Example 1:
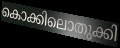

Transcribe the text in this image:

കൊക്കിലൊതുക്കി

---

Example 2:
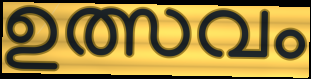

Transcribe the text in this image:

ഉത്സവം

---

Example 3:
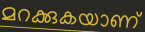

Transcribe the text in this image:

മറക്കുകയാണ്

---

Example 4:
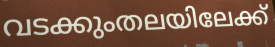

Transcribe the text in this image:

വടക്കുംതലയിലേക്ക്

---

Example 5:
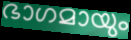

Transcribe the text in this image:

ഭാഗമായും